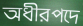
অধীরপদে